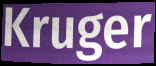
Kruger